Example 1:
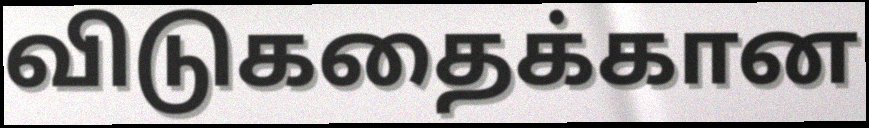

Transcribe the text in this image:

விடுகதைக்கான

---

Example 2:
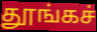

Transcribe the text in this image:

தூங்கச்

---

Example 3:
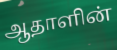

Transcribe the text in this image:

ஆதாளின்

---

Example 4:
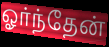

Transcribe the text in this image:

ஓர்ந்தேன்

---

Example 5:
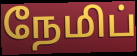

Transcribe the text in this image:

நேமிப்